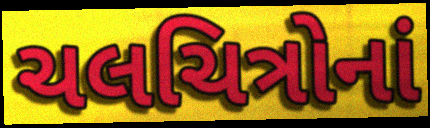
ચલચિત્રોનાં